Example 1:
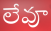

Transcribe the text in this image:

లేవూ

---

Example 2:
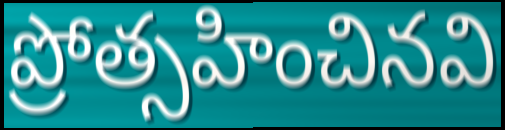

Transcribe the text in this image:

ప్రోత్సహించినవి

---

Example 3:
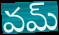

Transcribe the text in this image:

వమ్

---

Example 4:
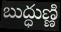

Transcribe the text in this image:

బుద్ధుణ్ణి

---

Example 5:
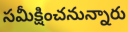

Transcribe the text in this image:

సమీక్షించనున్నారు